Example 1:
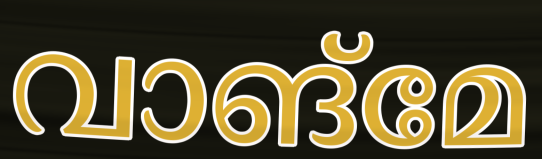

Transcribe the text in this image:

വാങ്മേ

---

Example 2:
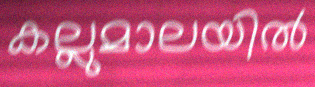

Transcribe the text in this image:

കല്ലുമാലയിൽ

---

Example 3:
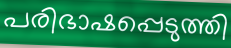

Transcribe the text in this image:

പരിഭാഷപ്പെടുത്തി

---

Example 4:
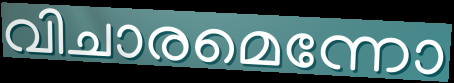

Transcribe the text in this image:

വിചാരമെന്നോ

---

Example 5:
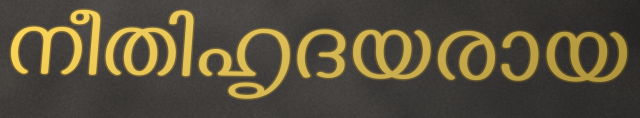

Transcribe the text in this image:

നീതിഹൃദയരായ